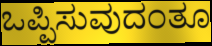
ಒಪ್ಪಿಸುವುದಂತೂ